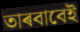
তাৰবাবেই